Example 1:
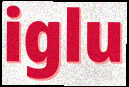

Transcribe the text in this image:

iglu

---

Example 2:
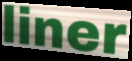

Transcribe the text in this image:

liner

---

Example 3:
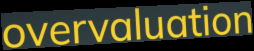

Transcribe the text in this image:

overvaluation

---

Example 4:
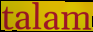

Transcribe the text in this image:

talam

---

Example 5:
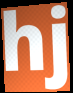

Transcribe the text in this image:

hj